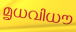
മൃധവിധൗ